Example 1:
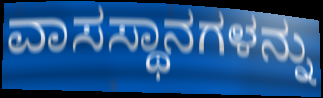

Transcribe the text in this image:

ವಾಸಸ್ಥಾನಗಳನ್ನು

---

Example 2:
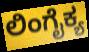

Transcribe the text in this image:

ಲಿಂಗೈಕ್ಯ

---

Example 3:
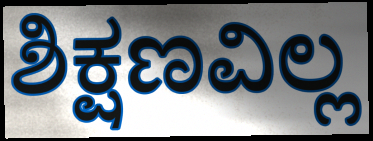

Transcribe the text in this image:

ಶಿಕ್ಷಣವಿಲ್ಲ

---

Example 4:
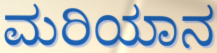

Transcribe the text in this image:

ಮರಿಯಾನ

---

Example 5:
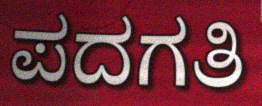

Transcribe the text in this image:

ಪದಗತಿ